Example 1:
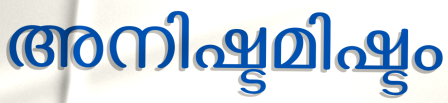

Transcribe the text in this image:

അനിഷ്ടമിഷ്ടം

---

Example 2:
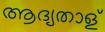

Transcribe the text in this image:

ആദ്യതാള്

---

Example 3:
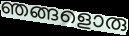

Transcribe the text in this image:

ഞങ്ങളൊരു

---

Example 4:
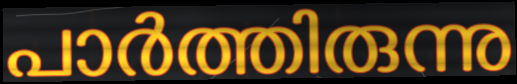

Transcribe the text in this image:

പാർത്തിരുന്നു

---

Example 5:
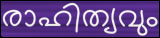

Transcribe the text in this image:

രാഹിത്യവും